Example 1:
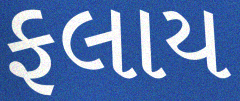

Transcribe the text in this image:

ફલાય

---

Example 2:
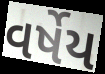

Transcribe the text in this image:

વર્ષેય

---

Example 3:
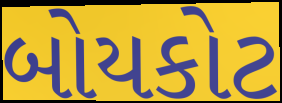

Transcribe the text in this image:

બોયકોટ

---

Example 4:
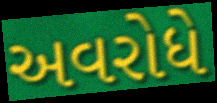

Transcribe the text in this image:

અવરોધે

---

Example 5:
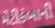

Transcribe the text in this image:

મેટીકંબાની